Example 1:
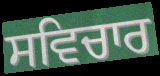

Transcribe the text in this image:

ਸਵਿਚਾਰ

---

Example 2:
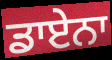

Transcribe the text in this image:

ਡਾਏਨਾ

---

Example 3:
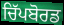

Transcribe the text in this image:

ਚਿੱਪਬੋਰਡ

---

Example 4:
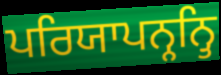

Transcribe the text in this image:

ਪਰਿਯਾਪਨ੍ਨਨ੍ਤਿ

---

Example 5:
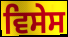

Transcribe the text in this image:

ਵਿਸੇਸ